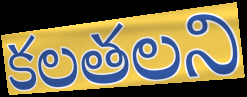
కలతలని